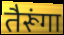
तैरूंगा